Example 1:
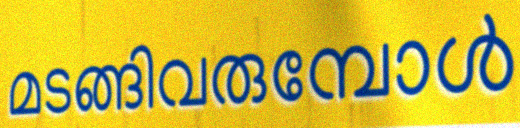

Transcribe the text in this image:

മടങ്ങിവരുമ്പോൾ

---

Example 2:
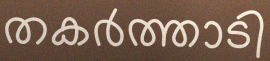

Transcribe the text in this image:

തകർത്താടി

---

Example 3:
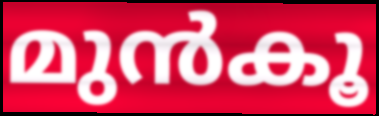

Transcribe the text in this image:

മുൻകൂ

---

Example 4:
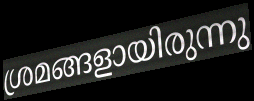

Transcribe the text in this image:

ശ്രമങ്ങളായിരുന്നു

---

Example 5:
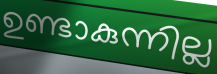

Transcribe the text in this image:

ഉണ്ടാകുന്നില്ല